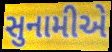
સુનામીએ